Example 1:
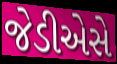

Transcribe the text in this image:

જેડીએસે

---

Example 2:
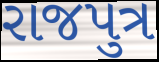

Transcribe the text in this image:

રાજપુત્ર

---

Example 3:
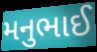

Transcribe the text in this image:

મનુભાઈ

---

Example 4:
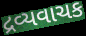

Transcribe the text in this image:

દ્રવ્યવાચક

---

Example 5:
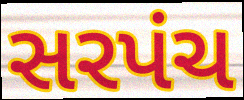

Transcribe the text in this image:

સરપંચ